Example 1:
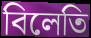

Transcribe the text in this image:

বিলেতি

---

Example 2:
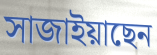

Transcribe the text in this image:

সাজাইয়াছেন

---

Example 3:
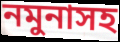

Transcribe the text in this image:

নমুনাসহ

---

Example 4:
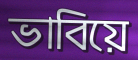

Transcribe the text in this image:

ভাবিয়ে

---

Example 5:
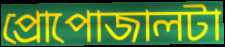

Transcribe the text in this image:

প্রোপোজালটা